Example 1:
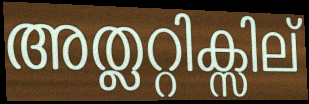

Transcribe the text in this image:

അത്ലറ്റിക്സില്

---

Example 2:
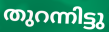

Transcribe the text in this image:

തുറന്നിട്ടു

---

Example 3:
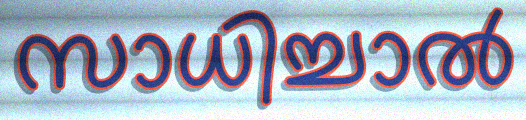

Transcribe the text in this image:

സാധിച്ചാൽ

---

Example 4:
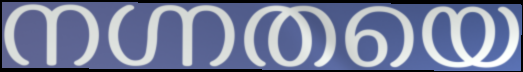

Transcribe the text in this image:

നഗ്നതയെ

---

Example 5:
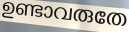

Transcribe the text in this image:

ഉണ്ടാവരുതേ